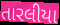
તારલીયા